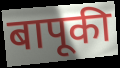
बापूकी